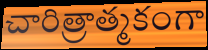
చారిత్రాత్మకంగా